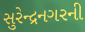
સુરેન્દ્રનગરની